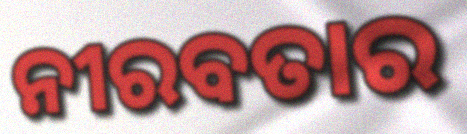
ନୀରବତାର